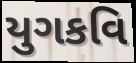
યુગકવિ